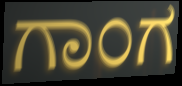
ಗಾಂಗ